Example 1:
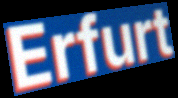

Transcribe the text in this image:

Erfurt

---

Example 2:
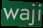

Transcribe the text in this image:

waji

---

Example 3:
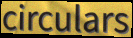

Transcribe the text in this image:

circulars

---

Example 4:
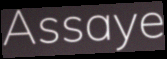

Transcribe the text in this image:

Assaye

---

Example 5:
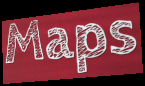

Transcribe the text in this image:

Maps